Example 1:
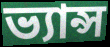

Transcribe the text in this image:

ভ্যান্স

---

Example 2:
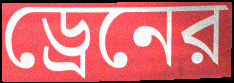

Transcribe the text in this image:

ড্রেনের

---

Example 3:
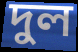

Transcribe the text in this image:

দুল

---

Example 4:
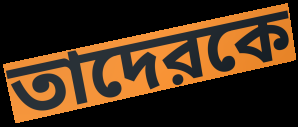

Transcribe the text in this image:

তাদেরকে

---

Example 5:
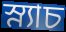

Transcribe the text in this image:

স্ন্যাচ